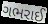
ગભરાઈ